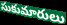
సుకుమారులు